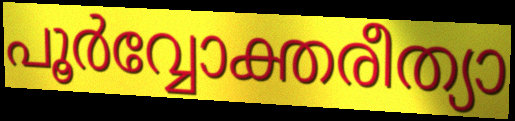
പൂർവ്വോക്തരീത്യാ